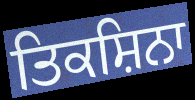
ਤਿਕਸ਼ਿਨਾ